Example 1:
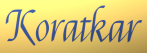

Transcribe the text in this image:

Koratkar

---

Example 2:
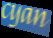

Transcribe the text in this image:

cyan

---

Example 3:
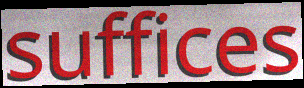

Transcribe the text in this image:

suffices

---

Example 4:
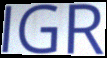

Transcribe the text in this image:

IGR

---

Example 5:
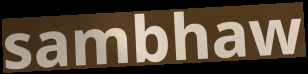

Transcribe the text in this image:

sambhaw